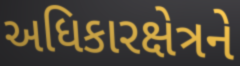
અધિકારક્ષેત્રને